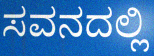
ಸವನದಲ್ಲಿ